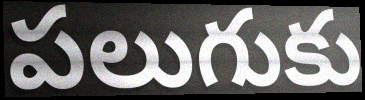
పలుగుకు